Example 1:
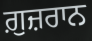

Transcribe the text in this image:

ਗ਼ੁਜ਼ਰਾਨ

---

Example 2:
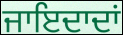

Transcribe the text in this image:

ਜਾਇਦਾਦਾਂ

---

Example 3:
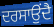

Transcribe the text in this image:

ਦਰਸਾਉਂਦੈ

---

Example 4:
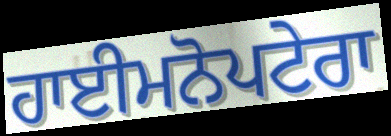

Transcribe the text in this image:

ਹਾਈਮਨੋਪਟੇਰਾ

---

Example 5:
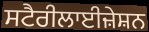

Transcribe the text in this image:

ਸਟੈਰੀਲਾਈਜ਼ੇਸ਼ਨ